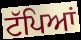
ਟੱਪਿਆਂ